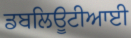
ਡਬਲਿਊਟੀਆਈ